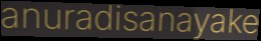
anuradisanayake